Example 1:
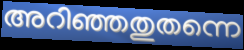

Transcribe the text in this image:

അറിഞ്ഞതുതന്നെ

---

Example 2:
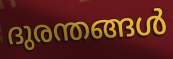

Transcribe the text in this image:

ദുരന്തങ്ങൾ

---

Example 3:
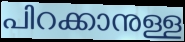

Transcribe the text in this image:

പിറക്കാനുള്ള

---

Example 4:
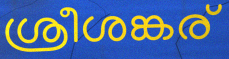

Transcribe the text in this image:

ശ്രീശങ്കര്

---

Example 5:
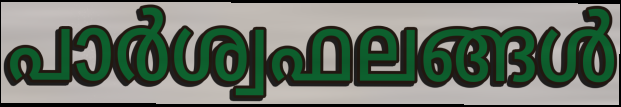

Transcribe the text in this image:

പാർശ്വഫലങ്ങൾ